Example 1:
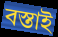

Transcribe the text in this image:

বস্তাই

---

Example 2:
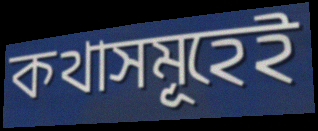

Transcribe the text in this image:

কথাসমূহেই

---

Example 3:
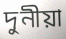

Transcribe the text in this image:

দুনীয়া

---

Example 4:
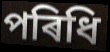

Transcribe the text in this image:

পৰিধি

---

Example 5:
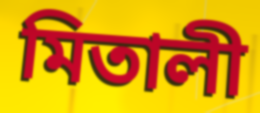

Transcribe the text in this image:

মিতালী